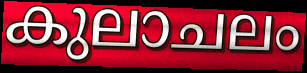
കുലാചലം